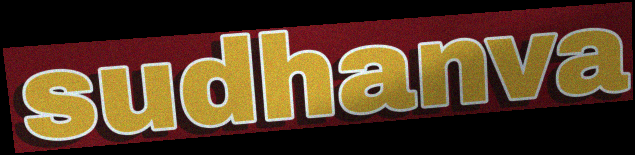
sudhanva